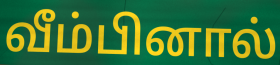
வீம்பினால்